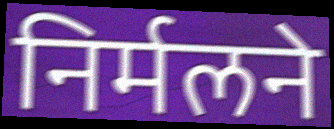
निर्मलने